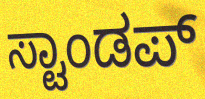
ಸ್ಟಾಂಡಪ್